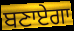
ਬਣਾਏਗਾ